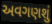
અવગણશું